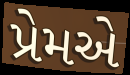
પ્રેમએ